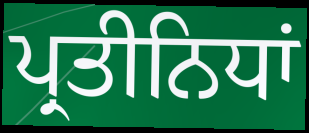
ਪ੍ਰਤੀਨਿਧਾਂ